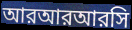
আরআরআরসি